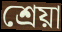
শ্ৰেয়া